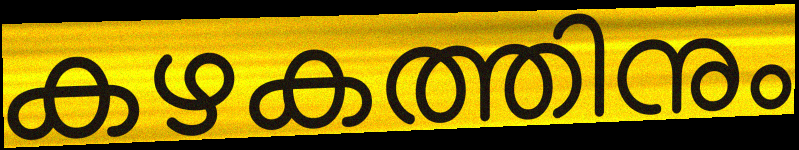
കഴകത്തിനും